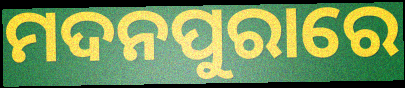
ମଦନପୁରାରେ